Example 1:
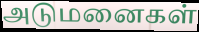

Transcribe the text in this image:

அடுமனைகள்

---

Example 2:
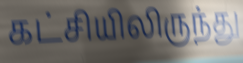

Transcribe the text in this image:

கட்சியிலிருந்து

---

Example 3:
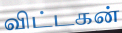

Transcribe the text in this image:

விட்டகன்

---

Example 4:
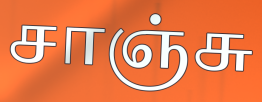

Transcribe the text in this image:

சாஞ்சு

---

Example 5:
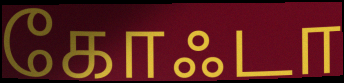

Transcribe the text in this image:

கோஃடா